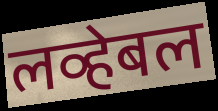
लव्हेबल